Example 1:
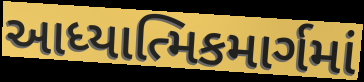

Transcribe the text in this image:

આધ્યાત્મિકમાર્ગમાં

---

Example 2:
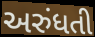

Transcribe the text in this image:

અરુંધતી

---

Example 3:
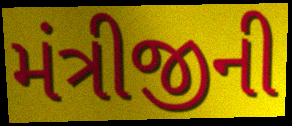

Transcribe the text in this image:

મંત્રીજીની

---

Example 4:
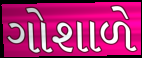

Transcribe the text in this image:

ગોશાળે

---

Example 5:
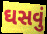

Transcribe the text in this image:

ઘસવું